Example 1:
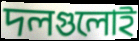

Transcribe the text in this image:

দলগুলোই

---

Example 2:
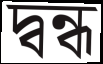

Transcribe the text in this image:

দ্বন্ধ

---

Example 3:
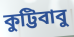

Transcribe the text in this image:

কুট্টিবাবু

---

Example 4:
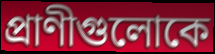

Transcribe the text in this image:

প্রাণীগুলোকে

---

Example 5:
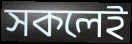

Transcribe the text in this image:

সকলেই